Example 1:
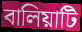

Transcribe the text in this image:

বালিয়াটি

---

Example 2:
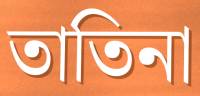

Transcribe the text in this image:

তাতিনা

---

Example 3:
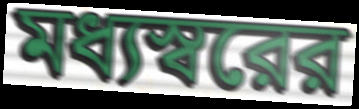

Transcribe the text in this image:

মধ্যস্বরের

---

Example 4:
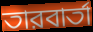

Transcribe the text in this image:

তারবার্তা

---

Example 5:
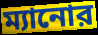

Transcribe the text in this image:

ম্যানোর